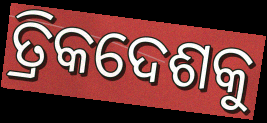
ତ୍ରିକଦେଶକୁ